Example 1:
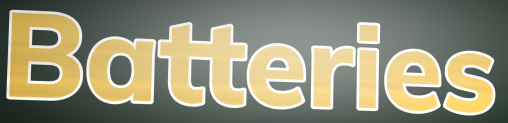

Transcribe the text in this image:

Batteries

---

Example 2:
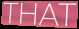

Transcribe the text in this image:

THAT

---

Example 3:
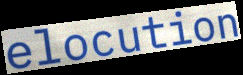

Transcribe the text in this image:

elocution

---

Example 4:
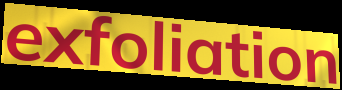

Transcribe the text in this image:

exfoliation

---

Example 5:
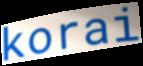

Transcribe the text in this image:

korai